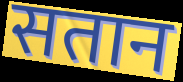
सतान